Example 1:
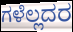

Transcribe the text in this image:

ಗಳೆಲ್ಲದರ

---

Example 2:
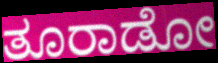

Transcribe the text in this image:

ತೂರಾಡೋ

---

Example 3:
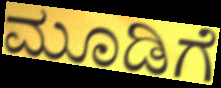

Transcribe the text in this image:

ಮೂಡಿಗೆ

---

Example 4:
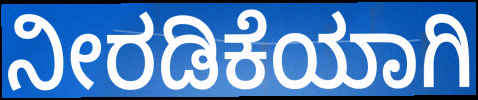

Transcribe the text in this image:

ನೀರಡಿಕೆಯಾಗಿ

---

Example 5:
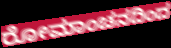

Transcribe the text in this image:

ರೋಮಾಂಚನದಿಂದ